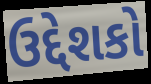
ઉદ્દેશકો